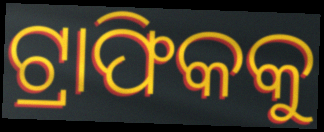
ଟ୍ରାଫିକକୁ